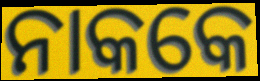
ନାକକେ